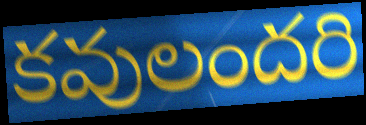
కవులందరి